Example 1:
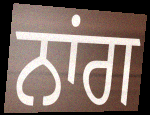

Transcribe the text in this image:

ਨਾਂਗ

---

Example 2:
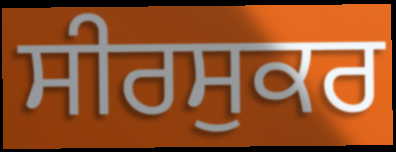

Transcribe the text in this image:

ਸੀਰਸੁਕਰ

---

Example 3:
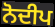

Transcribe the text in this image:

ਨੋਦੀਪ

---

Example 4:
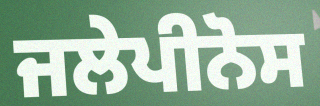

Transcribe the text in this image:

ਜਲੇਪੀਨੋਸ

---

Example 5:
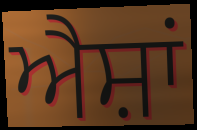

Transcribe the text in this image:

ਐਸ਼ਾਂ